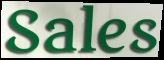
Sales